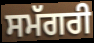
ਸਮੱਗਰੀ